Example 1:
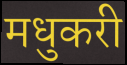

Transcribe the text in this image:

मधुकरी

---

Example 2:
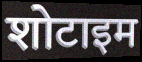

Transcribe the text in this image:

शोटाइम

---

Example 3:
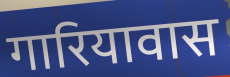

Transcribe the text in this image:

गारियावास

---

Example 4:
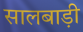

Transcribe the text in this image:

सालबाड़ी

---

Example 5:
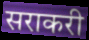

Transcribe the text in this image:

सराकरी